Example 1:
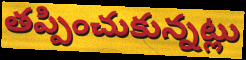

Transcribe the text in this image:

తప్పించుకున్నట్లు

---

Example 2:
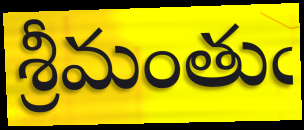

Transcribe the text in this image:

శ్రీమంతుఁ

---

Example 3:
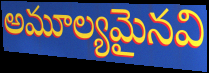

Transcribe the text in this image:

అమూల్యమైనవి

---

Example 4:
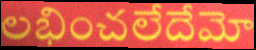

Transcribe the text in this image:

లభించలేదేమో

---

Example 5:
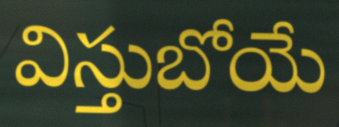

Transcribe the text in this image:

విస్తుబోయే